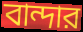
বান্দার